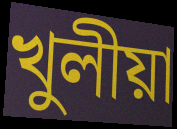
খুলীয়া